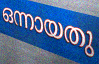
ഒന്നായതു